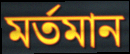
মর্তমান